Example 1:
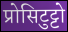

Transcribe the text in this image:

प्रोसिटुट्टो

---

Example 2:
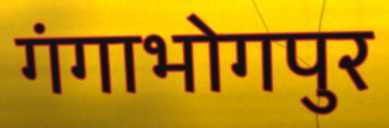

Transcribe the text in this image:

गंगाभोगपुर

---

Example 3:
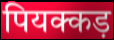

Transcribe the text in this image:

पियक्कड़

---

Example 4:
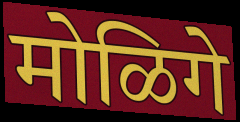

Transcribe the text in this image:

मोळिगे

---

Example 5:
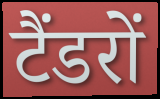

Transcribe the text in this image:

टैंडरों